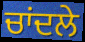
ਚਾਂਦਲੇ